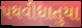
પથવીધાતુયા